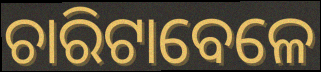
ଚାରିଟାବେଳେ